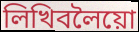
লিখিবলৈয়ো